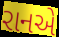
રાનએ